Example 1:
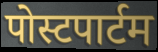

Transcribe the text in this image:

पोस्टपार्टम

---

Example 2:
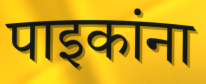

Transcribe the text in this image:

पाइकांना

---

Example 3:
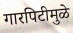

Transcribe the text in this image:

गारपिटीमुळे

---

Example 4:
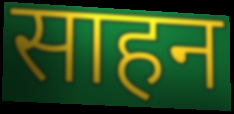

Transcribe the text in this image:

साहन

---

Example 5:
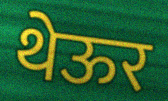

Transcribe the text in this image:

थेऊर